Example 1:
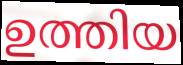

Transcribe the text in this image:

ഉത്തിയ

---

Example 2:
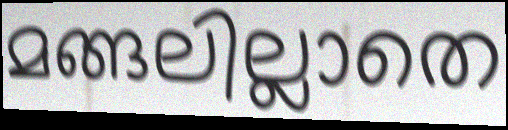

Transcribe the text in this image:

മങ്ങലില്ലാതെ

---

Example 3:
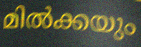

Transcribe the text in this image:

മിൽക്കയും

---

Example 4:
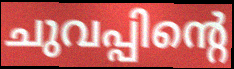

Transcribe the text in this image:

ചുവപ്പിന്റെ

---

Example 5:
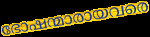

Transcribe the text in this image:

ഭോഷന്മാരായവരെ